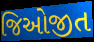
જિઓજીત